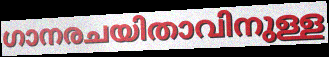
ഗാനരചയിതാവിനുള്ള